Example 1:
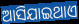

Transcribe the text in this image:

ଆସିଯାଇଥାଏ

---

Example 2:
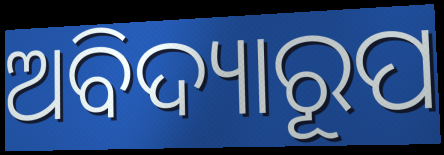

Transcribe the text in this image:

ଅବିଦ୍ୟାରୂପ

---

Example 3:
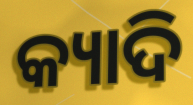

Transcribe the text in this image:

କ୍ୟାଦି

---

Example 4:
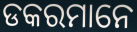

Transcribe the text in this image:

ଡକରମାନେ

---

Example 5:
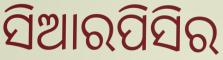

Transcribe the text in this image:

ସିଆରପିସିର